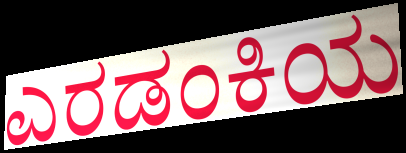
ಎರಡಂಕಿಯ